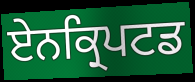
ਏਨਕ੍ਰਿਪਟਡ